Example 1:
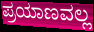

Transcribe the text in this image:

ಪ್ರಯಾಣವಲ್ಲ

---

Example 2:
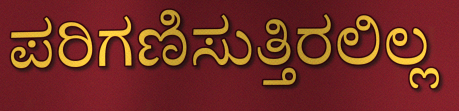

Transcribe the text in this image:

ಪರಿಗಣಿಸುತ್ತಿರಲಿಲ್ಲ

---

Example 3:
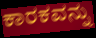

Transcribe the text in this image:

ಕಾರಕವನ್ನು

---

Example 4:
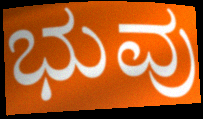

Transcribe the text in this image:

ಭುವು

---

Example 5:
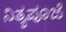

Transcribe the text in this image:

ನಿತ್ಯಪೂಜೆ